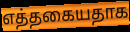
எத்தகையதாக